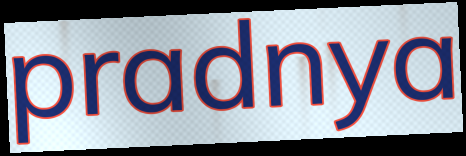
pradnya